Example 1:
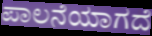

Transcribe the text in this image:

ಪಾಲನೆಯಾಗದೆ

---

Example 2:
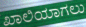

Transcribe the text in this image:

ಖಾಲಿಯಾಗಲು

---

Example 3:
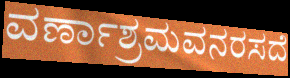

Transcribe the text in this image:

ವರ್ಣಾಶ್ರಮವನರಸದೆ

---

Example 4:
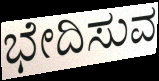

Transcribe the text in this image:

ಭೇದಿಸುವ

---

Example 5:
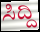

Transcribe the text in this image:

ಸಿದ್ದಿ